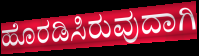
ಹೊರಡಿಸಿರುವುದಾಗಿ